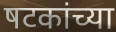
षटकांच्या